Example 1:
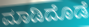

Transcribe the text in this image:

ಮಾಡಿದೊಡೆ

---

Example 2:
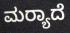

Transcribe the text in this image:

ಮರ‍್ಯಾದೆ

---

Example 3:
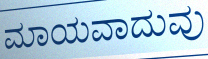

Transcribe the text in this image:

ಮಾಯವಾದುವು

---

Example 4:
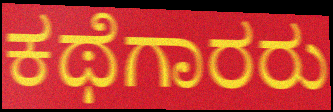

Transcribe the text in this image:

ಕಥೆಗಾರರು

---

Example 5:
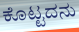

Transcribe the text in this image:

ಕೊಟ್ಟದನು